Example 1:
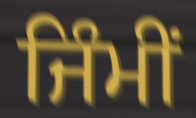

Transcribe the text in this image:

ਜਿੰਮੀਂ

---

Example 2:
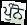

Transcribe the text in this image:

ਪੁੰਨੋ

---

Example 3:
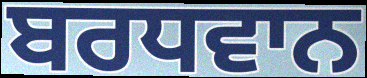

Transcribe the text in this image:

ਬਰਧਵਾਨ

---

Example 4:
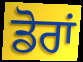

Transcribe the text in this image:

ਡੋਰਾਂ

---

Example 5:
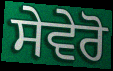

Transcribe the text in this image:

ਸੇਵੇਰੋ